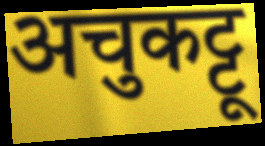
अचुकट्टू